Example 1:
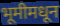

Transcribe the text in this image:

भूमीमधून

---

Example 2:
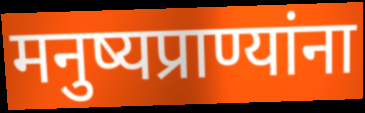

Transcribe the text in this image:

मनुष्यप्राण्यांना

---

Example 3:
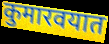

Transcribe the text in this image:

कुमारवयात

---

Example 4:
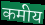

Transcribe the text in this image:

कमीय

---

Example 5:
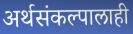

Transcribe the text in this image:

अर्थसंकल्पालाही